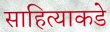
साहित्याकडे